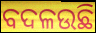
ବଦଳଉଛି